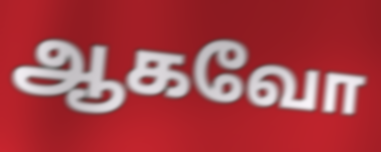
ஆகவோ